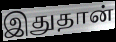
இதுதான்